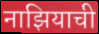
नाझियाची